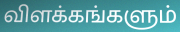
விளக்கங்களும்